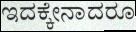
ಇದಕ್ಕೇನಾದರೂ